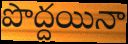
పొద్దయినా